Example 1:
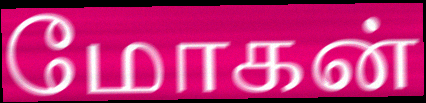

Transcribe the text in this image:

மோகன்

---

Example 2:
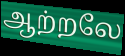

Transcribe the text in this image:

ஆற்றலே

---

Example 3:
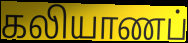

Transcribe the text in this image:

கலியாணப்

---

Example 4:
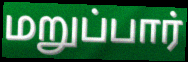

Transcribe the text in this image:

மறுப்பார்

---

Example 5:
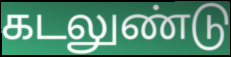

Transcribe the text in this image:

கடலுண்டு